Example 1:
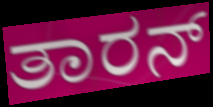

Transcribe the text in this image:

ತಾರನ್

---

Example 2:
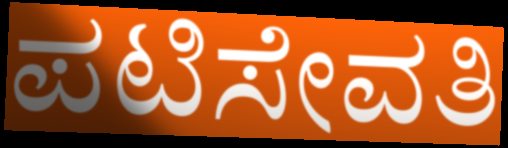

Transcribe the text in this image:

ಪಟಿಸೇವತಿ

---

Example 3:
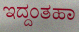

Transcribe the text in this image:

ಇದ್ದಂತಹಾ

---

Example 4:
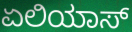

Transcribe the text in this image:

ಏಲಿಯಾಸ್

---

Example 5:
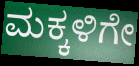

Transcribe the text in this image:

ಮಕ್ಕಳಿಗೇ